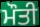
ਮੌਤੀ